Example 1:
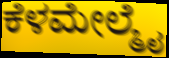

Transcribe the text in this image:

ಕೆಳಮೇಲ್ಮೈ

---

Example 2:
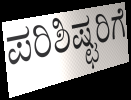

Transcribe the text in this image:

ಪರಿಶಿಷ್ಟರಿಗೆ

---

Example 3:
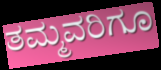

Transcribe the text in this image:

ತಮ್ಮವರಿಗೂ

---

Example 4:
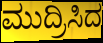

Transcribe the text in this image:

ಮುದ್ರಿಸಿದ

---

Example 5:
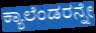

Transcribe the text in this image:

ಕ್ಯಾಲೆಂಡರನ್ನೇ